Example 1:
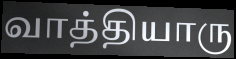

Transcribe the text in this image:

வாத்தியாரு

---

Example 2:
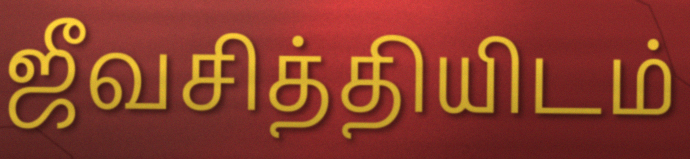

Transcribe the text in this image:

ஜீவசித்தியிடம்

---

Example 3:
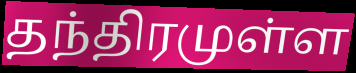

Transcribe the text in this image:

தந்திரமுள்ள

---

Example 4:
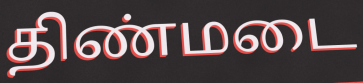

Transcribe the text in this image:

திண்மடை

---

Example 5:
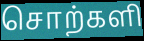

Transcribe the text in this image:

சொற்களி